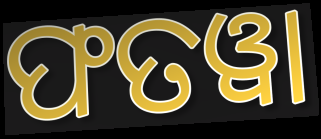
ଫତୱା